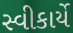
સ્વીકાર્યે